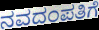
ನವದಂಪತಿಗೆ